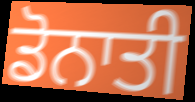
ਡੋਨਾਤੀ